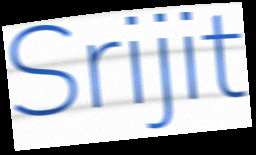
Srijit